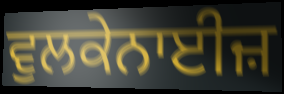
ਵੁਲਕੇਨਾਈਜ਼